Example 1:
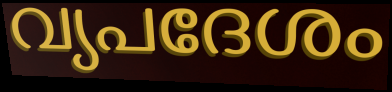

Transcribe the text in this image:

വ്യപദേശം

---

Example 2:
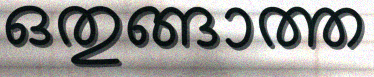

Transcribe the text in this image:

ഒതുങ്ങാത്ത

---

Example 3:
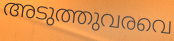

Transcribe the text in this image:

അടുത്തുവരവെ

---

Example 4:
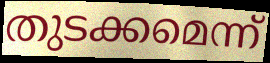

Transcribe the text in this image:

തുടക്കമെന്ന്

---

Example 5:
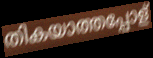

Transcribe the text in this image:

തികയാത്തപ്പോള്